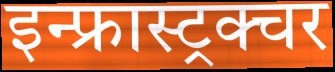
इन्फ्रास्ट्रक्‍चर